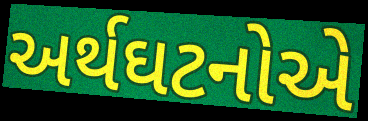
અર્થઘટનોએ